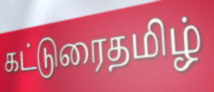
கட்டுரைதமிழ்